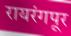
रायरंगपूर